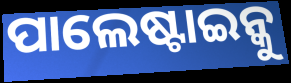
ପାଲେଷ୍ଟାଇନ୍କୁ